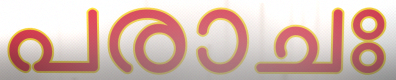
പരാചഃ